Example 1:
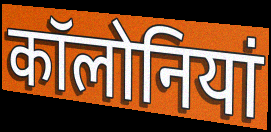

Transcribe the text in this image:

कॉलोनियां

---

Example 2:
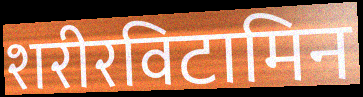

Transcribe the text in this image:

शरीरविटामिन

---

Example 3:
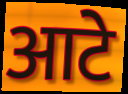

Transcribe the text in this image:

आटे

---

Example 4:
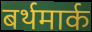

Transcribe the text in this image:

बर्थमार्क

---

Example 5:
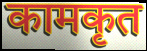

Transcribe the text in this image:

कामकृत